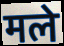
मले